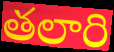
తలారి